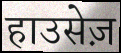
हाउसेज़